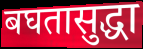
बघतासुद्धा